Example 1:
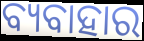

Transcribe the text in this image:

ବ୍ୟବାହାର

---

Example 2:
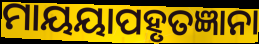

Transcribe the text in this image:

ମାୟୟାପହୃତଜ୍ଞାନା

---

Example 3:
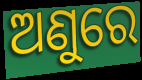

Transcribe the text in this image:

ଅଣୁରେ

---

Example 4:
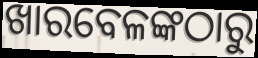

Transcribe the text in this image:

ଖାରବେଳଙ୍କଠାରୁ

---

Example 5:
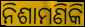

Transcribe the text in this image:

ନିଶାମଣିକି